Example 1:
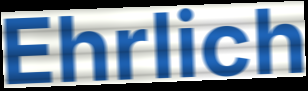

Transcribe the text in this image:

Ehrlich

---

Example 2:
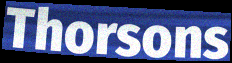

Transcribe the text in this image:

Thorsons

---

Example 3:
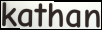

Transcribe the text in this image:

kathan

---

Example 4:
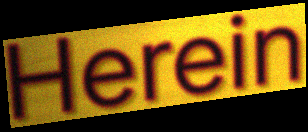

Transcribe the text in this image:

Herein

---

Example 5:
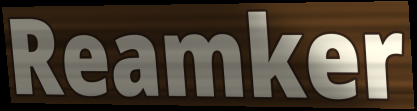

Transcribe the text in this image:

Reamker